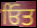
ਓਿਤ